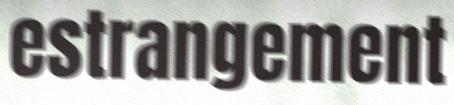
estrangement